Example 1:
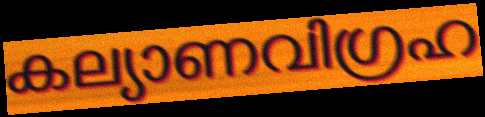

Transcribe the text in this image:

കല്യാണവിഗ്രഹ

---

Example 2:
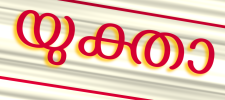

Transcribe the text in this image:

യുക്താ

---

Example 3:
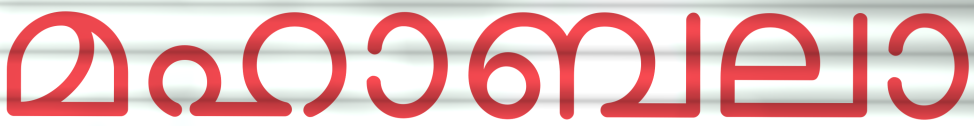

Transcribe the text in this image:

മഹാബലാ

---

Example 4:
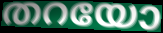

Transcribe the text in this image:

തറയോ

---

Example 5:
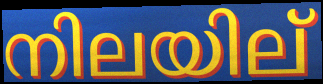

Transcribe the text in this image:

നിലയില്